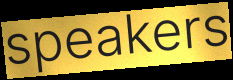
speakers